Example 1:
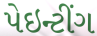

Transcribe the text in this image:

પેઇન્ટીંગ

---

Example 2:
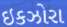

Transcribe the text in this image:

ઇકઝોરા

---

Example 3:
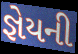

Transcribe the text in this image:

જ્ઞેયની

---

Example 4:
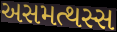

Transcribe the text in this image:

અસમત્થસ્સ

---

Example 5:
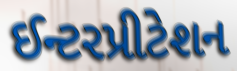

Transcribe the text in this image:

ઈન્ટરપ્રીટેશન